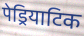
पेड्रियाटिक